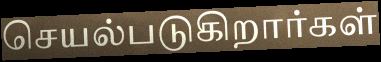
செயல்படுகிறார்கள்